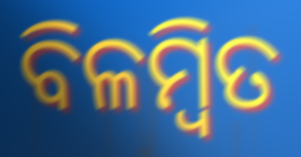
ବିଳମ୍ବିତ